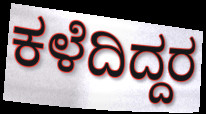
ಕಳೆದಿದ್ದರ